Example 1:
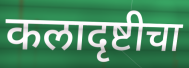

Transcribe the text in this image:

कलादृष्टीचा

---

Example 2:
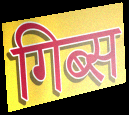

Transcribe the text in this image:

गिब्स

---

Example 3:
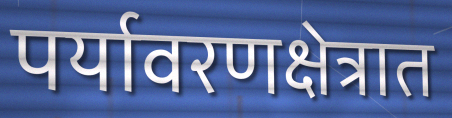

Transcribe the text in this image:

पर्यावरणक्षेत्रात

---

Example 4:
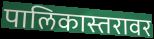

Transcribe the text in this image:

पालिकास्तरावर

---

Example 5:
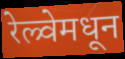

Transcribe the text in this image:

रेल्वेमधून